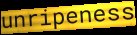
unripeness